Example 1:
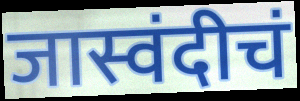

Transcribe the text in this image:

जास्वंदीचं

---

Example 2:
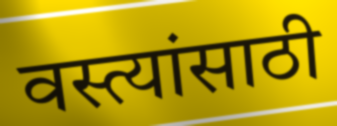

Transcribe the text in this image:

वस्त्यांसाठी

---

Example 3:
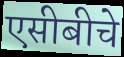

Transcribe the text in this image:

एसीबीचे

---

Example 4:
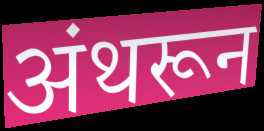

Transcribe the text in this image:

अंथरून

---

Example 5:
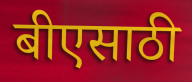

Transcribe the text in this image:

बीएसाठी